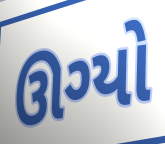
ઊગ્યો